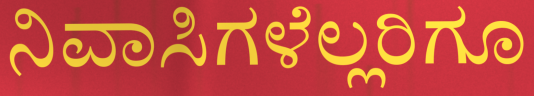
ನಿವಾಸಿಗಳೆಲ್ಲರಿಗೂ